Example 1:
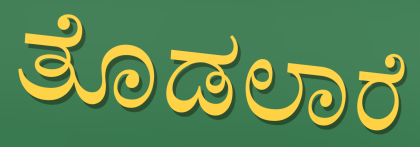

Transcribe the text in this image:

ತೊಡಲಾರೆ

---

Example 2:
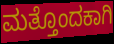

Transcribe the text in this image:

ಮತ್ತೊಂದಕಾಗಿ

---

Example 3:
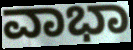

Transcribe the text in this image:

ವಾಭಾ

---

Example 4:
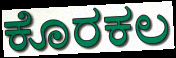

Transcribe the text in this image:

ಕೊರಕಲ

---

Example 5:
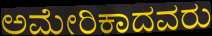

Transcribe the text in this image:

ಅಮೇರಿಕಾದವರು